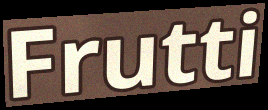
Frutti